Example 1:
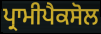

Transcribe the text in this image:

ਪ੍ਰਾਮੀਪੈਕਸੋਲ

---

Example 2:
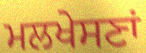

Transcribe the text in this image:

ਮਲਖੇਸਣਾਂ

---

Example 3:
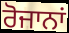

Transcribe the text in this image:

ਰੋਜਾਨਾਂ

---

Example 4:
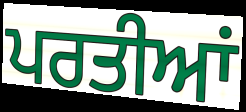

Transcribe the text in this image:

ਪਰਤੀਆਂ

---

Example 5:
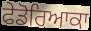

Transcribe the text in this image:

ਫੇਡੋਰਿਆਕਾ